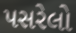
પસરેલો